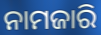
ନାମଜାରି